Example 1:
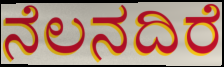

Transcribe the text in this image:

ನೆಲನದಿರೆ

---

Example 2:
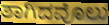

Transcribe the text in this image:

ತಾಗಿದವೊಲು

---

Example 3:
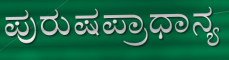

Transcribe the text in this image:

ಪುರುಷಪ್ರಾಧಾನ್ಯ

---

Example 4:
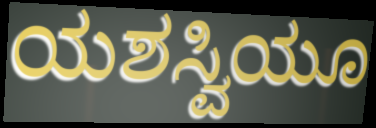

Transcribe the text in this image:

ಯಶಸ್ವಿಯೂ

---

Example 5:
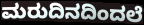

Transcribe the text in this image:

ಮರುದಿನದಿಂದಲೆ